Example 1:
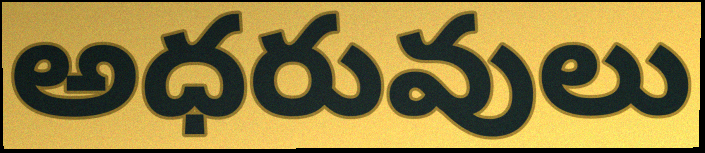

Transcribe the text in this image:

అధరువులు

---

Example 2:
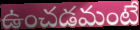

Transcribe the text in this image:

ఉంచడమంటే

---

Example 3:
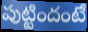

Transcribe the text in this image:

పుట్టిందంటే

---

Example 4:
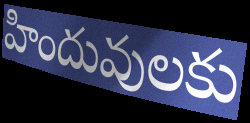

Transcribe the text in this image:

హిందువులకు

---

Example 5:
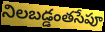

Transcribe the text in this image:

నిలబడ్డంతసేపూ